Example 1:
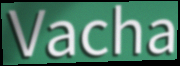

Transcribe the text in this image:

Vacha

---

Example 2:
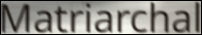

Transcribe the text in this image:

Matriarchal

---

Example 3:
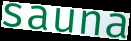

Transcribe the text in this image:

sauna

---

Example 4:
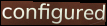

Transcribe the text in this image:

configured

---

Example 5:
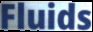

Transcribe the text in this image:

Fluids